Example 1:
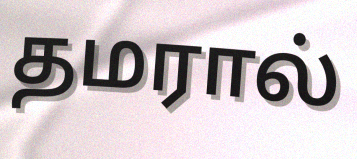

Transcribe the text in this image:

தமரால்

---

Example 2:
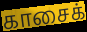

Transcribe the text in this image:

காசைக்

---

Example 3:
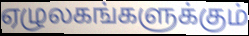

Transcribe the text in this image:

ஏழுலகங்களுக்கும்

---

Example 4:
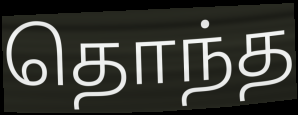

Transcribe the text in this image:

தொந்த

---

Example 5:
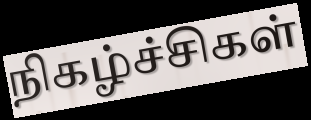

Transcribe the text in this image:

நிகழ்ச்சிகள்